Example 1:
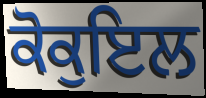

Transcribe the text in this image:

ਕੋਕੁਇਲ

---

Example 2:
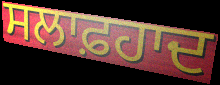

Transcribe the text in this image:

ਸਲਾਫ਼ਹਾਦ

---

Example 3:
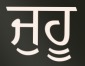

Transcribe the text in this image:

ਜੁਹੂ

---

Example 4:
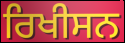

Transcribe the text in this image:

ਰਿਖੀਸਨ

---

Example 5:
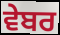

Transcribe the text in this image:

ਵੇਬਰ